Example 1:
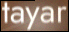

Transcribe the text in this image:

tayar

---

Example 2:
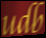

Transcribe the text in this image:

udb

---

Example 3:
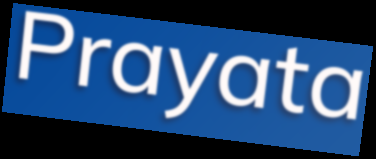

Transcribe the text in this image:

Prayata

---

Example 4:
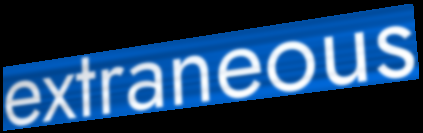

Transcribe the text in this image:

extraneous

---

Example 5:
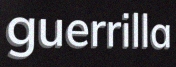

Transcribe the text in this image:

guerrilla